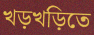
খড়খড়িতে